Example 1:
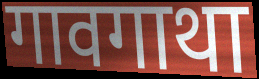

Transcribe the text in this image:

गावगाथा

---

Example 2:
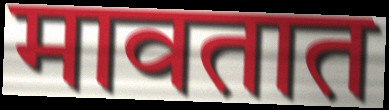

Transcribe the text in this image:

मावतात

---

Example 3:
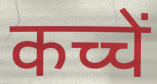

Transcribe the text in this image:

कच्चें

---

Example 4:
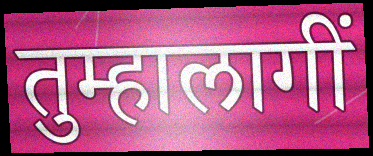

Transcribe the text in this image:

तुम्हालागीं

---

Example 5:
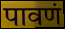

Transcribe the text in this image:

पावणं